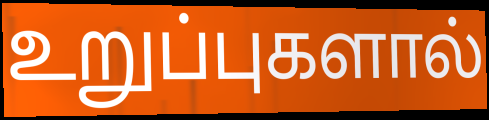
உறுப்புகளால்